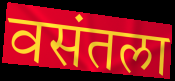
वसंतला